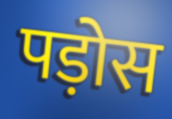
पड़ोस